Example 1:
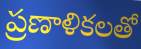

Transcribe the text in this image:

ప్రణాళికలతో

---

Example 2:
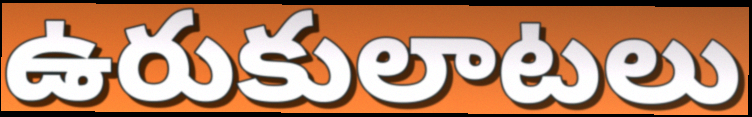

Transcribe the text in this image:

ఉరుకులాటలు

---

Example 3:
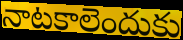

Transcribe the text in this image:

నాటకాలెందుకు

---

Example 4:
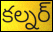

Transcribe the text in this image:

కల్నర్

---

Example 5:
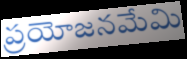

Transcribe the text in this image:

ప్రయోజనమేమి